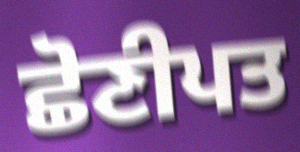
ਛੋਣੀਪਤ